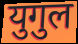
युगुल